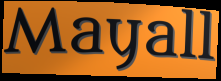
Mayall